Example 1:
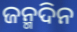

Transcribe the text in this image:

ଜନ୍ମଦିନ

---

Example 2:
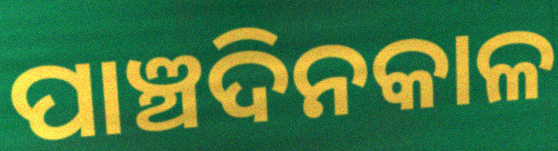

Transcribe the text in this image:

ପାଞ୍ଚଦିନକାଳ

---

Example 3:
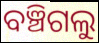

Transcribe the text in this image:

ବଞ୍ଚିଗଲୁ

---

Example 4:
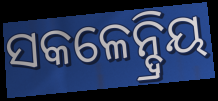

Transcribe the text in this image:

ସକଳେନ୍ଦ୍ରିୟ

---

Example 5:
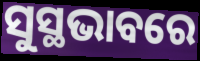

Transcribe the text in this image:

ସୁସ୍ଥଭାବରେ